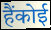
हैंकोई